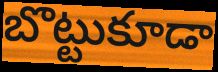
బొట్టుకూడా